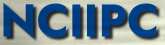
NCIIPC